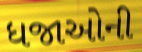
ધજાઓની